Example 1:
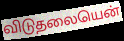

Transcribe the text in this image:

விடுதலையென்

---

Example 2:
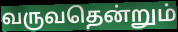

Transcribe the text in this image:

வருவதென்றும்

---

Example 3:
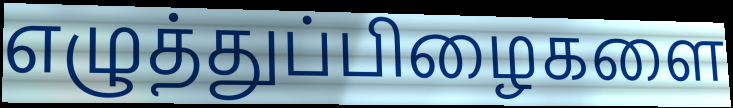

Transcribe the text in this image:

எழுத்துப்பிழைகளை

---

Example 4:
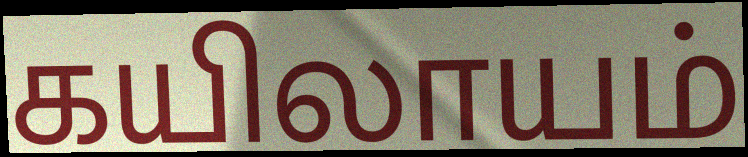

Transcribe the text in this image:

கயிலாயம்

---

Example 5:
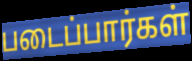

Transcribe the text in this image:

படைப்பார்கள்